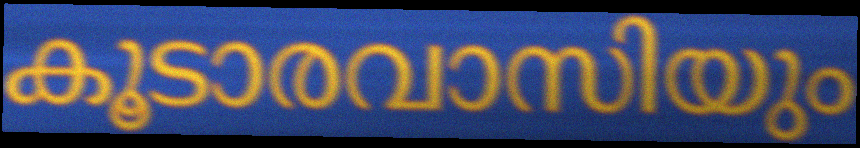
കൂടാരവാസിയും